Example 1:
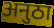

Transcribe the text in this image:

अनुठा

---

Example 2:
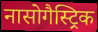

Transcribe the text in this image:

नासोगैस्ट्रिक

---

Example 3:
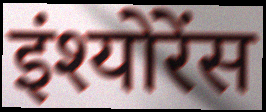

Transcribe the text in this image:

इंश्योरेंस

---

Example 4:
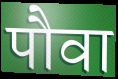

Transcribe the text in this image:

पौवा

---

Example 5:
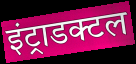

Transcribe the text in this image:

इंट्राडक्टल